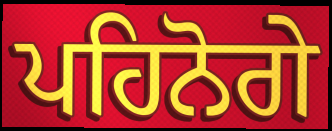
ਪਹਿਨੋਗੇ